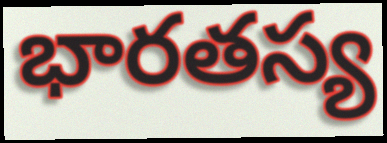
భారతస్య